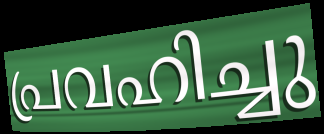
പ്രവഹിച്ചു